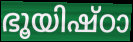
ഭൂയിഷ്ഠാ